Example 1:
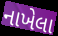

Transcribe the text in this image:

નાખેલા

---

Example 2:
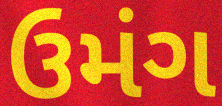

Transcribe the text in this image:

ઉમંગ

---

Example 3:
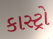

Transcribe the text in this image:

કાસ્ટ્રો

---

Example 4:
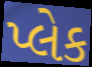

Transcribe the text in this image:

પ્લેક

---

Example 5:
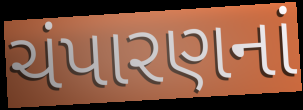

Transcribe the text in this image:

ચંપારણનાં